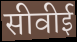
सीवीई